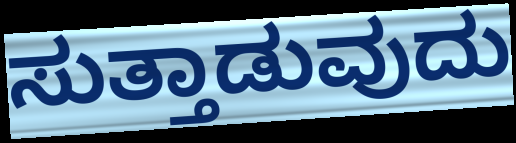
ಸುತ್ತಾಡುವುದು